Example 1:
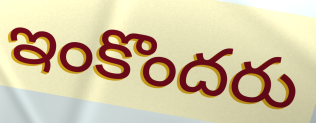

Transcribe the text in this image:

ఇంకొందరు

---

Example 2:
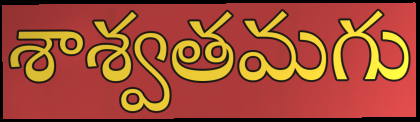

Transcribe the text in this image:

శాశ్వతమగు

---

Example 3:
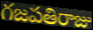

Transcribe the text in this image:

గజపతిరాజు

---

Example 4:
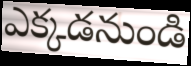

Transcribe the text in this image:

ఎక్కడనుండి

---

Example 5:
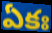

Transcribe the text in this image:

ఏకః